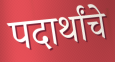
पदार्थांचे